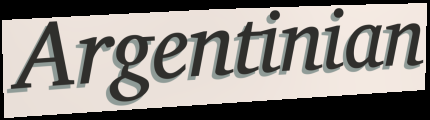
Argentinian